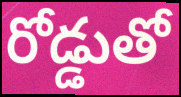
రోడ్డుతో